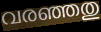
വരഞ്ഞതു